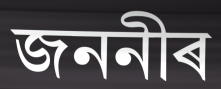
জননীৰ